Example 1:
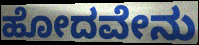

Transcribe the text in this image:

ಹೋದವೇನು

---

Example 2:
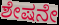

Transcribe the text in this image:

ಶೇಷನೇ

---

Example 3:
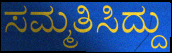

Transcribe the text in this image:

ಸಮ್ಮತಿಸಿದ್ದು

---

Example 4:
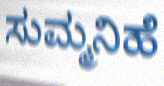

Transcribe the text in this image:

ಸುಮ್ಮನಿಹೆ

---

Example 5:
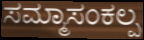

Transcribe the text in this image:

ಸಮ್ಮಾಸಂಕಲ್ಪ